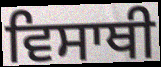
ਵਿਸਾਥੀ